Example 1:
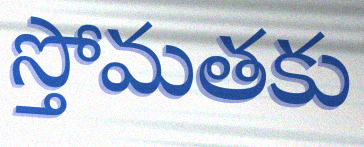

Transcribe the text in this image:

స్తోమతకు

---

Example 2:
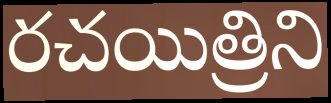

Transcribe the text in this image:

రచయిత్రిని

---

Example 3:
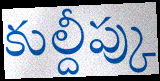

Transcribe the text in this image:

కుల్దీప్కు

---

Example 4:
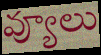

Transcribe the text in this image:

వ్యూలు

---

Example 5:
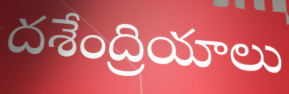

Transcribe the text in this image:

దశేంద్రియాలు